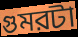
গুমরটা